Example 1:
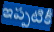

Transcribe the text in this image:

ఇప్పటికీ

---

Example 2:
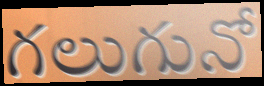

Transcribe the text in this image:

గలుగునో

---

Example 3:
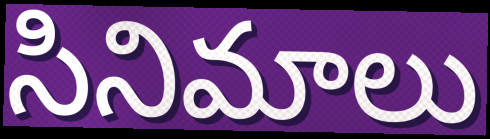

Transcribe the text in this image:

సినిమాలు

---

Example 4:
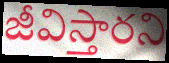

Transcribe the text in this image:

జీవిస్తారని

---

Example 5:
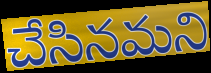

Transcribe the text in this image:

చేసినమని